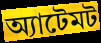
অ্যাটেমট